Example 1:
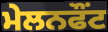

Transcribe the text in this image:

ਮੇਲਨਫੌਂਟ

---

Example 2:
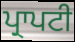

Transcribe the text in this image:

ਪ੍ਰਾਪਟੀ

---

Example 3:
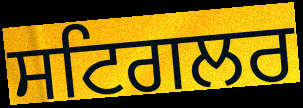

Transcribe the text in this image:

ਸਟਿਗਲਰ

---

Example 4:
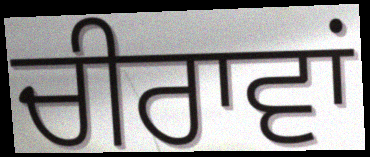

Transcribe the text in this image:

ਚੀਰਾਵਾਂ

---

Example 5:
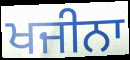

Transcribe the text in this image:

ਖਜੀਨਾ